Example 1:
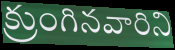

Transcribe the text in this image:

క్రుంగినవారిని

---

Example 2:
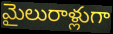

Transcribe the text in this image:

మైలురాళ్లుగా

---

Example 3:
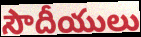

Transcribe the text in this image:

సౌదీయులు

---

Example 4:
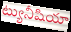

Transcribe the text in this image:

ట్యునీషియా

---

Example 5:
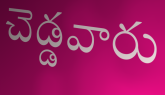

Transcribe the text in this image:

చెడ్డవారు